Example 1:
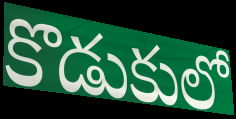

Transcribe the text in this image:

కొడుకులో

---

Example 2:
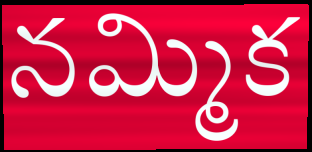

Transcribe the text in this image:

నమ్మిక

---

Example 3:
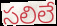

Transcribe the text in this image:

సలిలే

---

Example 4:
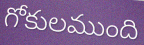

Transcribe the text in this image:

గోకులముంది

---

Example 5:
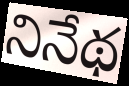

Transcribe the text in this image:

నినేథ